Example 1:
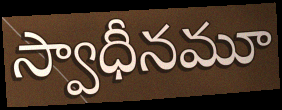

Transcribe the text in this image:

స్వాధీనమూ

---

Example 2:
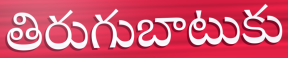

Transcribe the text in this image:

తిరుగుబాటుకు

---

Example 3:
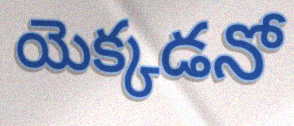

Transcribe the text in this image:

యెక్కడనో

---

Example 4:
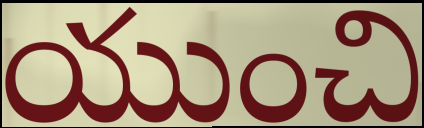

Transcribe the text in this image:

యుంచి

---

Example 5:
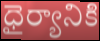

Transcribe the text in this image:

ధైర్యానికి